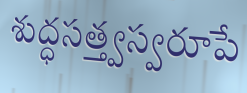
శుద్ధసత్త్వస్వరూపే